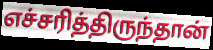
எச்சரித்திருந்தான்